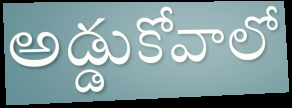
అడ్డుకోవాలో